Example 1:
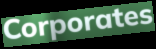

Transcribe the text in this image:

Corporates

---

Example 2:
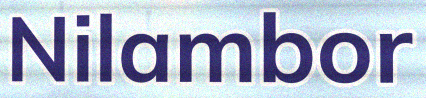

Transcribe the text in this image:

Nilambor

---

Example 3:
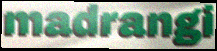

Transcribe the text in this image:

madrangi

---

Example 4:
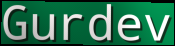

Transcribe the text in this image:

Gurdev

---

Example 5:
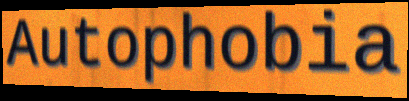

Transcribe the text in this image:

Autophobia